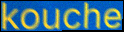
kouche